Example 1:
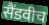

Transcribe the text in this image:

सैंडवीच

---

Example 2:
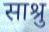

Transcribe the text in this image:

साश्रु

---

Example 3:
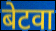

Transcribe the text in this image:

बेटवा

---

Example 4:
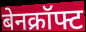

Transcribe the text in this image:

बेनक्रॉफ्ट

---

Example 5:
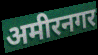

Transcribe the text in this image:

अमीरनगर